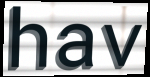
hav